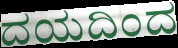
ದಯದಿಂದ